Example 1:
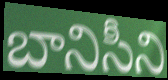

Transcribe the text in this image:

బానిసీని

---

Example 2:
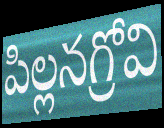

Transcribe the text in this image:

పిల్లనగ్రోవి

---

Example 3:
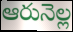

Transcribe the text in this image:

ఆరునెల్ల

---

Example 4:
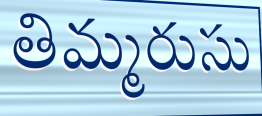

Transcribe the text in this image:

తిమ్మరుసు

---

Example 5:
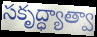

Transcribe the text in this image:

సకృద్ధ్యాత్వా